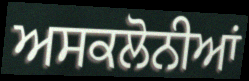
ਅਸਕਲੋਨੀਆਂ